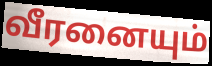
வீரனையும்